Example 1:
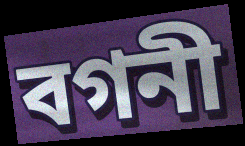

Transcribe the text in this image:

বগনী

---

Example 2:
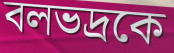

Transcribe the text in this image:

বলভদ্রকে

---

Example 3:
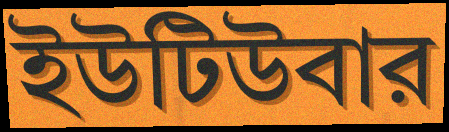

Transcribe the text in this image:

ইউটিউবার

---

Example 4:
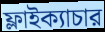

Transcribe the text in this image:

ফ্লাইক্যাচার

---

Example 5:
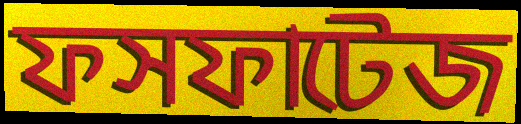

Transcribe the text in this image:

ফসফাটেজ